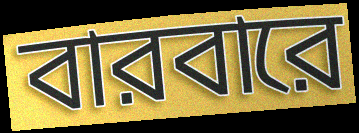
বারবারে